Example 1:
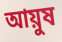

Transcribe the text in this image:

আয়ুষ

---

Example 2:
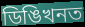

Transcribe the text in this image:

ডিঙিখনত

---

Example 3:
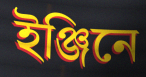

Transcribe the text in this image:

ইঞ্জিনে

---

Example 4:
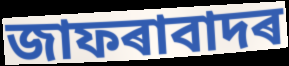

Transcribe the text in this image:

জাফৰাবাদৰ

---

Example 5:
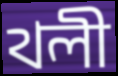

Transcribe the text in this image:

থলী